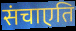
संचाएति